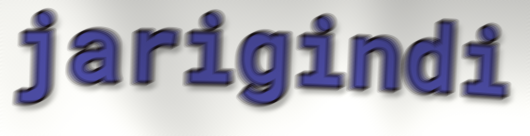
jarigindi